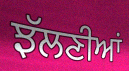
ਝੱਲਣੀਆਂ